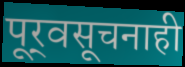
पूर्वसूचनाही